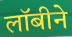
लॉबीने